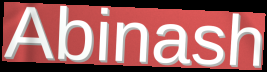
Abinash